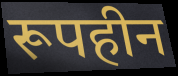
रूपहीन